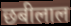
छबीलाल